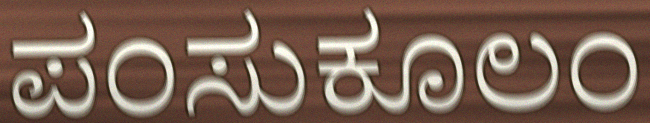
ಪಂಸುಕೂಲಂ